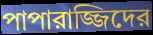
পাপারাজ্জিদের